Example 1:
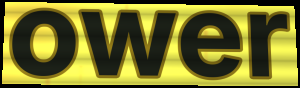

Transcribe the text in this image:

ower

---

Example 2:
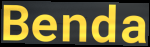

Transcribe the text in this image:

Benda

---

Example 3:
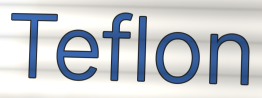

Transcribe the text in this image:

Teflon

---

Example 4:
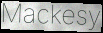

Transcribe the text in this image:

Mackesy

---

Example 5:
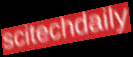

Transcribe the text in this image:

scitechdaily